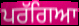
ਪਰੱਗਿਆ